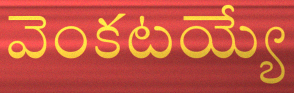
వెంకటయ్యే